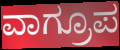
ವಾಗ್ರೂಪ